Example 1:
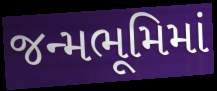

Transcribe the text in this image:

જન્મભૂમિમાં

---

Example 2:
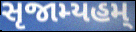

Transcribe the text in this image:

સૃજામ્યહમ્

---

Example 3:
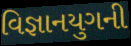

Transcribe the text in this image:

વિજ્ઞાનયુગની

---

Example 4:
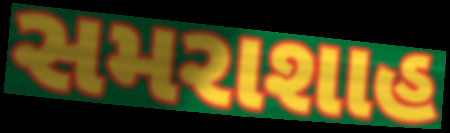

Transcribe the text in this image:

સમરાશાહ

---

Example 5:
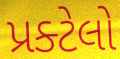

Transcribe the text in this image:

પ્રક્ટેલો